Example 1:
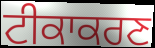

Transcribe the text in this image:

ਟੀਕਾਕਰਣ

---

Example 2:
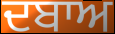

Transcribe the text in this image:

ਦਬਾਅ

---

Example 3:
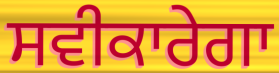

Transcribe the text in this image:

ਸਵੀਕਾਰੇਗਾ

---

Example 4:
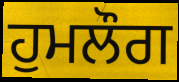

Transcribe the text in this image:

ਹੁਮਲੌਗ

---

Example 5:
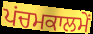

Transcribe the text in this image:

ਪਂਚਮਕਾਲਮੇਂ